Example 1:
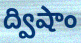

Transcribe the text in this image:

ద్విషాం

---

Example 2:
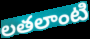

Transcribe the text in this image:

లతలాంటి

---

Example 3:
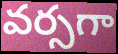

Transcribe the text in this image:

వర్సగా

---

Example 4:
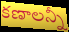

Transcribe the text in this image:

కణాలన్నీ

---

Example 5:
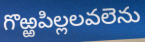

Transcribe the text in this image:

గొఱ్ఱపిల్లలవలెను